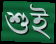
শুই